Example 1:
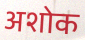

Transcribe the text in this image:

अशोक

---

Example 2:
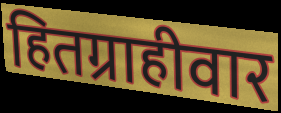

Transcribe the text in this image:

हितग्राहीवार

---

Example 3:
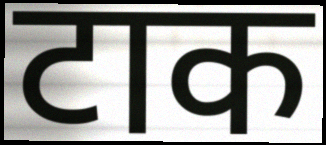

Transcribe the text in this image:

टाक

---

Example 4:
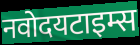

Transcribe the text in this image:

नवोदयटाइम्स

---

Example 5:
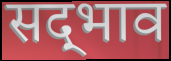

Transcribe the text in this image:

सद्‍भाव